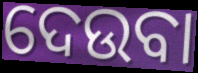
ଦେଉବା